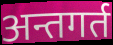
अन्तगर्त